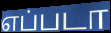
எப்படா